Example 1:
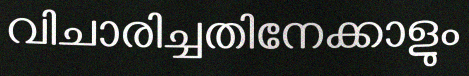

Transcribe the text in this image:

വിചാരിച്ചതിനേക്കാളും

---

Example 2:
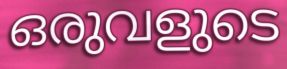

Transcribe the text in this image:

ഒരുവളുടെ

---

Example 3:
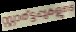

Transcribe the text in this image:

സ്റ്റാര്ട്ടപ്പുകളുടെ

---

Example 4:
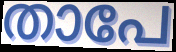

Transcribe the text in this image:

താപേ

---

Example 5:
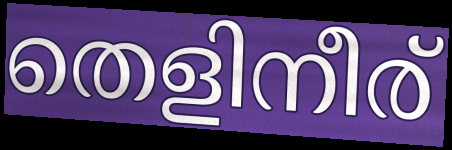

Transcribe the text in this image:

തെളിനീര്